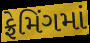
ફ્રેમિંગમાં